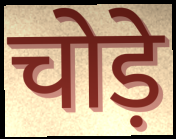
चोड़े